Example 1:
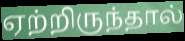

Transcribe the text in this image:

ஏற்றிருந்தால்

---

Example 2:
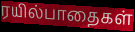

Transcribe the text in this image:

ரயில்பாதைகள்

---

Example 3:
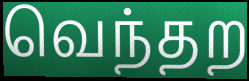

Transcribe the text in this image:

வெந்தற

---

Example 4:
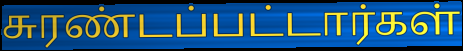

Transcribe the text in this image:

சுரண்டப்பட்டார்கள்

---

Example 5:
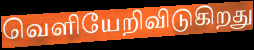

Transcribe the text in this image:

வெளியேறிவிடுகிறது